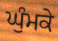
ਘੁੰਮਕੇ